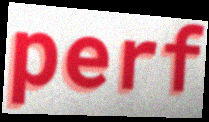
perf